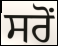
ਸਰੋਂ